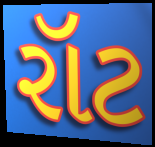
રૉટ